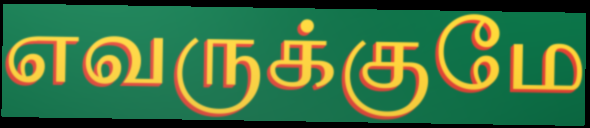
எவருக்குமே